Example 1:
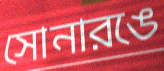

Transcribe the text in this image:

সোনারঙে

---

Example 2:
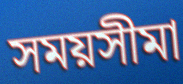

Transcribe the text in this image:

সময়সীমা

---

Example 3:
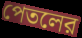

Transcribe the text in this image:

পেতলের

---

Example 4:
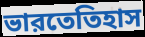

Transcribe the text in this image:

ভারতেতিহাস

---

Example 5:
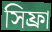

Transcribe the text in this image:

সিফ্রা